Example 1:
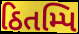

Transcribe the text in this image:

ઠિતમ્પિ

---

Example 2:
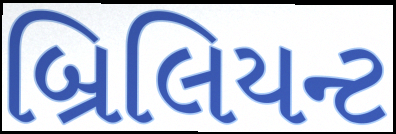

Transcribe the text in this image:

બ્રિલિયન્ટ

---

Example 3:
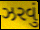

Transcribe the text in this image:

ઝરવું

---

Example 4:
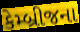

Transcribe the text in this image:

કેમ્બ્રીજના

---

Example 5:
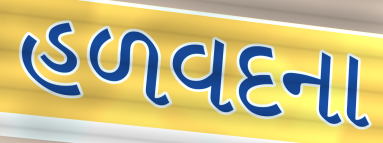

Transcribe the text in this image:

હળવદના